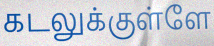
கடலுக்குள்ளே